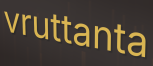
vruttanta